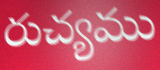
రుచ్యము